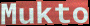
Mukto